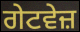
ਗੇਟਵੇਜ਼